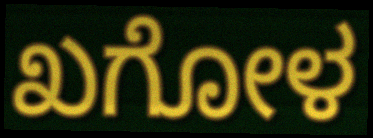
ಖಗೋಳ